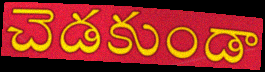
చెడకుండా